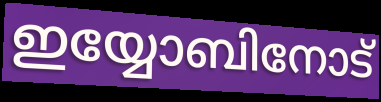
ഇയ്യോബിനോട്